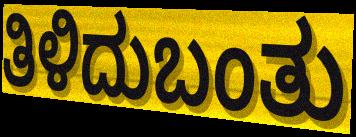
ತಿಳಿದುಬಂತು